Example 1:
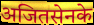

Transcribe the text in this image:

अजितसेनके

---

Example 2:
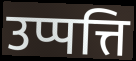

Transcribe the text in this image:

उप्पत्ति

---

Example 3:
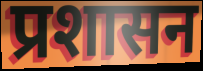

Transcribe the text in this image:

प्रशासन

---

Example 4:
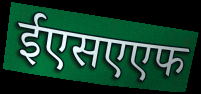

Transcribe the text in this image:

ईएसएएफ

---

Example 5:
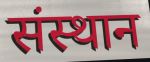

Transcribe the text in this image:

संस्थान